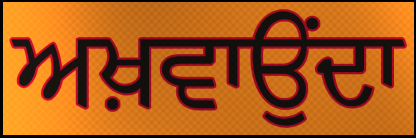
ਅਖ਼ਵਾਉਂਦਾ